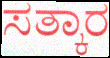
ಸತ್ಕಾರ